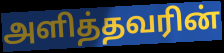
அளித்தவரின்